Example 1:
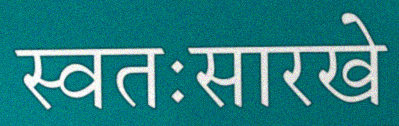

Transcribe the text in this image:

स्वतःसारखे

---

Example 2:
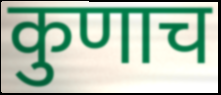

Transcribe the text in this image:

कुणाच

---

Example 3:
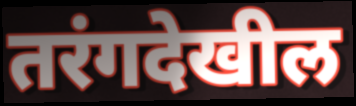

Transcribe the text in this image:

तरंगदेखील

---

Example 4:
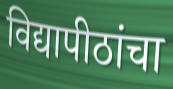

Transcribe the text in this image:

विद्यापीठांचा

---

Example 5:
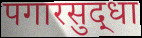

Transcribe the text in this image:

पगारसुद्धा